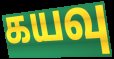
கயவு